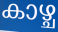
കാഴ്ച